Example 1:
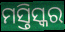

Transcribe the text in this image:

ମସ୍ତିସ୍କର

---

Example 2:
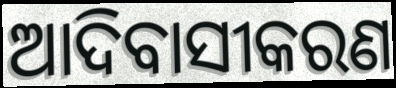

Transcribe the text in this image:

ଆଦିବାସୀକରଣ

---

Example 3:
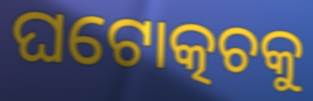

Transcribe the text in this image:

ଘଟୋତ୍କଚକୁ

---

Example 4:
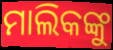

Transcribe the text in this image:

ମାଲିକଙ୍କୁ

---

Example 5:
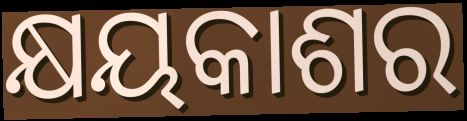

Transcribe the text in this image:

କ୍ଷୟକାଶର